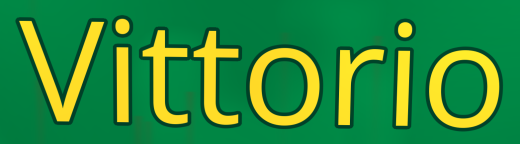
Vittorio